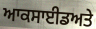
ਆਕਸਾਈਡਅਤੇ